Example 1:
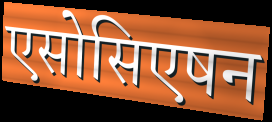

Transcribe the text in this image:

एसोसिएषन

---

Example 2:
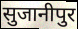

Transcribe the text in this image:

सुजानीपुर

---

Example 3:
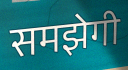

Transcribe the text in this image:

समझेगी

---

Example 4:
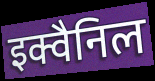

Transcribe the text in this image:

इक्वैनिल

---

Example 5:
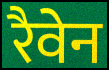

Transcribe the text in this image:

रैवेन